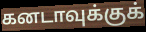
கனடாவுக்குக்